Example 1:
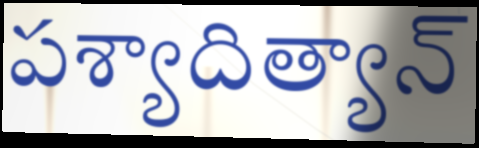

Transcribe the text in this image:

పశ్యాదిత్యాన్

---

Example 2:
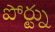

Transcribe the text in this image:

పోర్ట్ను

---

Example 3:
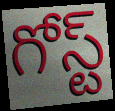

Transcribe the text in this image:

గోస్ట్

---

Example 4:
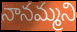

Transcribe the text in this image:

నానమ్మని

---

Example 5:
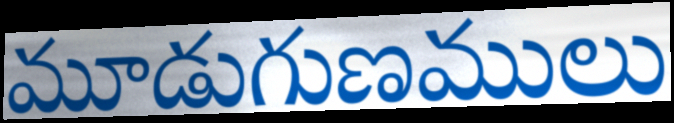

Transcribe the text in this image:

మూడుగుణములు